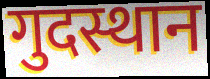
गुदस्थान